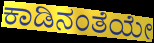
ಕಾಡಿನಂತೆಯೇ